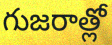
గుజరాత్లో